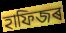
হাফিজৰ